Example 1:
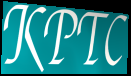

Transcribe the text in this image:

KPTC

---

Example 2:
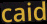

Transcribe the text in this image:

caid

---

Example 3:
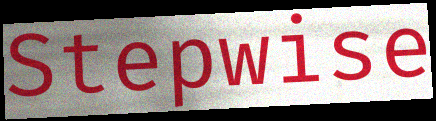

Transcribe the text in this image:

Stepwise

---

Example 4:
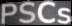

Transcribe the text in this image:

PSCs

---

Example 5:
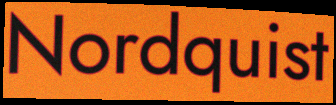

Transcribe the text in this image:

Nordquist